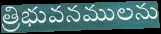
త్రిభువనములను